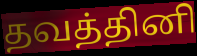
தவத்தினி